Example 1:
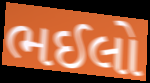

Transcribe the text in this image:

ભઈલો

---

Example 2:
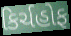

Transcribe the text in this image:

કિર્ચહોફ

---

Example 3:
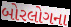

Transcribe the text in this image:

બોરલોગના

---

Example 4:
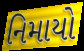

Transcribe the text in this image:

નિમાયો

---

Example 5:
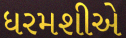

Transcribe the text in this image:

ધરમશીએ